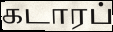
கடாரப்